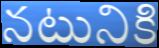
నటునికి